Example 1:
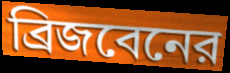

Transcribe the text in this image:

ব্রিজবেনের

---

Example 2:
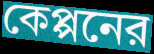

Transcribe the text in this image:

কেপ্পনের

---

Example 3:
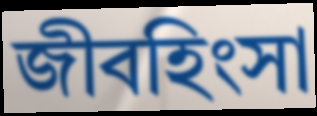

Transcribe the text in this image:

জীবহিংসা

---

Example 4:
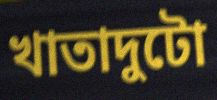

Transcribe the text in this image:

খাতাদুটো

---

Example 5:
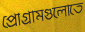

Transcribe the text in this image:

প্রোগ্রামগুলোতে